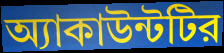
অ্যাকাউন্টটির